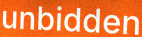
unbidden